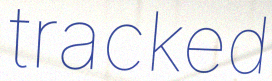
tracked